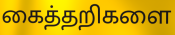
கைத்தறிகளை